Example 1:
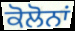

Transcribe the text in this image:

ਕੋਲੋਨਾਂ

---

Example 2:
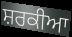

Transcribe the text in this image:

ਸ਼ਰਕੀਆ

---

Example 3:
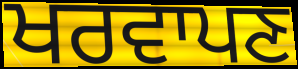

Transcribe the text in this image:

ਖਰਵਾਪਣ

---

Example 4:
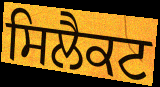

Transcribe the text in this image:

ਸਿਲੈਕਟ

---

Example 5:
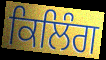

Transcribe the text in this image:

ਕਿਲਿੰਗ